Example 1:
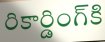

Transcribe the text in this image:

రికార్డింగ్‌కి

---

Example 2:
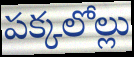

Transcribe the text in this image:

పక్కలోల్లు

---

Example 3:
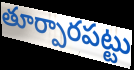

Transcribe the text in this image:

తూర్పారపట్టు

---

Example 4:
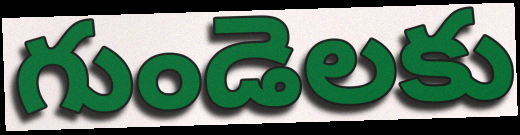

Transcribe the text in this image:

గుండెలకు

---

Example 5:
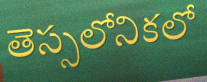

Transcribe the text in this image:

తెస్సలోనికలో